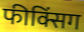
फीक्सिंग